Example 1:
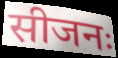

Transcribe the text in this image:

सीजनः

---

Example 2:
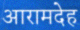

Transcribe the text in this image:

आरामदेह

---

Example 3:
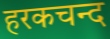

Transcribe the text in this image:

हरकचन्द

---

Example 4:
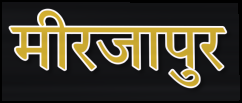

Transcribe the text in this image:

मीरजापुर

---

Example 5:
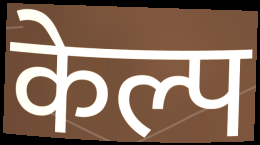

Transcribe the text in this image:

केल्प